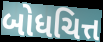
બોધચિત્ત